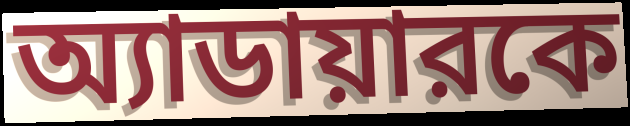
অ্যাডায়ারকে